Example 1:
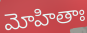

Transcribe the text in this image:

మోహితాః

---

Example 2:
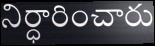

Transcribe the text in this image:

నిర్ధారించారు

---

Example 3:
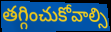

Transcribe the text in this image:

తగ్గించుకోవాల్సి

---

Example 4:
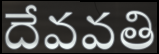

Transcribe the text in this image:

దేవవతి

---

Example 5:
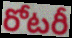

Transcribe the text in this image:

రోటరీ